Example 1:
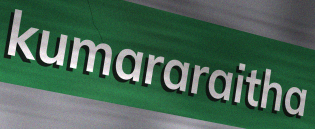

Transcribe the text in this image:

kumararaitha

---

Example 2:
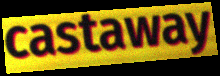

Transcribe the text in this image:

castaway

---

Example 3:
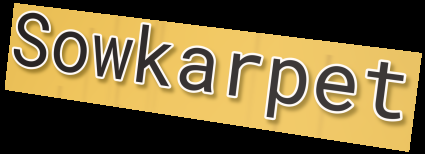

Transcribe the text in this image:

Sowkarpet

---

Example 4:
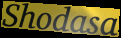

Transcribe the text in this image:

Shodasa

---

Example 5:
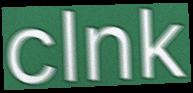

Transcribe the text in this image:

clnk